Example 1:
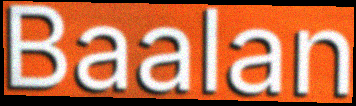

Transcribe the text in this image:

Baalan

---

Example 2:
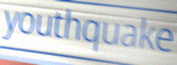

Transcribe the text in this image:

youthquake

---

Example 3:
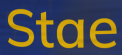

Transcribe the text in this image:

Stae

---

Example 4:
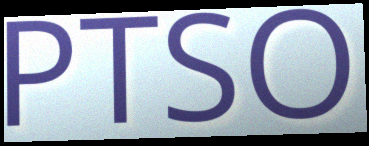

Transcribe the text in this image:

PTSO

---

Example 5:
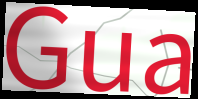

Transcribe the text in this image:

Gua